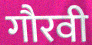
गौरवी